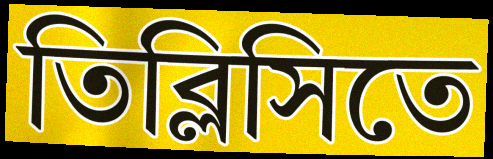
তিব্লিসিতে